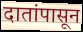
दातांपासून